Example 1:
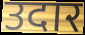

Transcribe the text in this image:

उदार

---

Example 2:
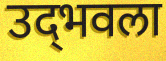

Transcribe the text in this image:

उद्‌भवला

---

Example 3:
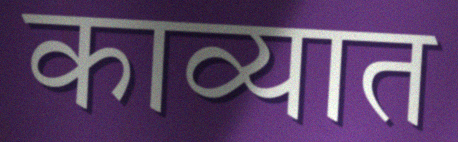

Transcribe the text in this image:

काव्यात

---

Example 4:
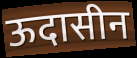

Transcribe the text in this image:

ऊदासीन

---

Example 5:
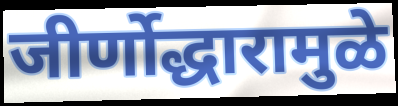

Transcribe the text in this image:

जीर्णोद्धारामुळे